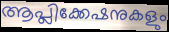
ആപ്ലിക്കേഷനുകളും